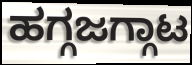
ಹಗ್ಗಜಗ್ಗಾಟ